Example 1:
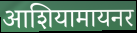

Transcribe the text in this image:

आशियामायनर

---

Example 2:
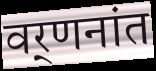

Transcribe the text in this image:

वर्णनांत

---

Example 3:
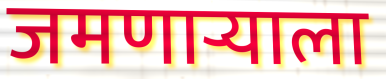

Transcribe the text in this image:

जमणाऱ्याला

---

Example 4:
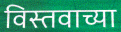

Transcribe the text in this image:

विस्तवाच्या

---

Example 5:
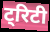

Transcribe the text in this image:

ट्रिटी